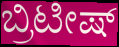
ಬ್ರಿಟೀಷ್